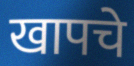
खापचे